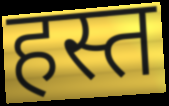
हस्त